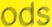
ods